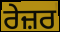
ਰੇਜ਼ਰ